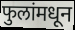
फुलांमधून